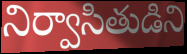
నిర్వాసితుడిని